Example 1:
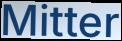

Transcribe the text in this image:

Mitter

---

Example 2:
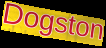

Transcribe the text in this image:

Dogston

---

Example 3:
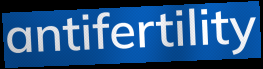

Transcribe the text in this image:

antifertility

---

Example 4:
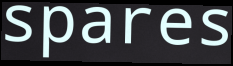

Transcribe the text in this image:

spares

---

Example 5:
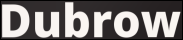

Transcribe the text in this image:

Dubrow